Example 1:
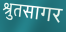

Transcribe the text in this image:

श्रुतसागर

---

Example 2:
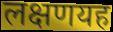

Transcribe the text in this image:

लक्षणयह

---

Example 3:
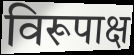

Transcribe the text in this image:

विरूपाक्ष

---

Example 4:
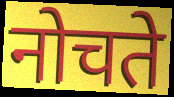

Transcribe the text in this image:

नोचते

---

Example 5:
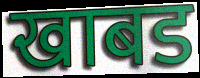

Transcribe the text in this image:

खाबड